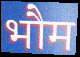
भौम